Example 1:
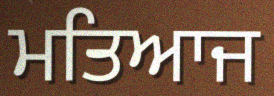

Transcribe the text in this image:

ਮਤਿਆਜ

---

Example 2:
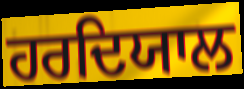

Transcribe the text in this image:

ਹਰਦਿਯਾਲ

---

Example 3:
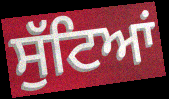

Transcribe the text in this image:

ਸੁੱਟਿਆਂ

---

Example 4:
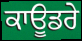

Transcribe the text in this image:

ਕਾਊਡਰੇ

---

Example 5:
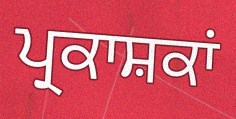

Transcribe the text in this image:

ਪ੍ਰਕਾਸ਼ਕਾਂ